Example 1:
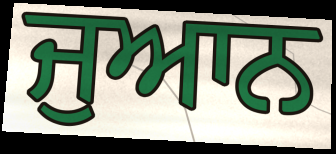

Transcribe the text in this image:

ਜੁਆਨ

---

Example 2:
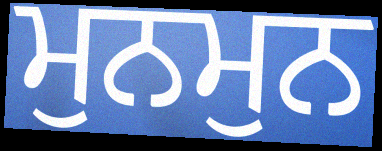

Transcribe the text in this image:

ਮੁਨਮੁਨ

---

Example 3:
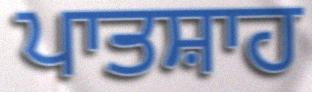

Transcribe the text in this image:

ਪਾਤਸ਼ਾਹ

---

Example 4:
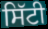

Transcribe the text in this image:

ਸਿੱਟੀ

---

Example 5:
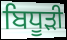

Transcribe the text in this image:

ਬਿਧੂੜੀ